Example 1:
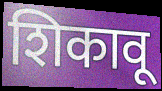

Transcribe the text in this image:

शिकावू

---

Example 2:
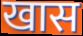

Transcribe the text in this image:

खास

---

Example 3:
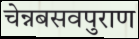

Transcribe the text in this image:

चेन्नबसवपुराण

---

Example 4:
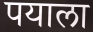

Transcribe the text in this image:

पयाला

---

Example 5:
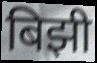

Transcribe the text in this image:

बिझी